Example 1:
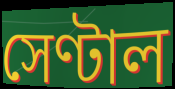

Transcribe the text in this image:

সেণ্টাল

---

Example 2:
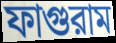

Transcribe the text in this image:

ফাগুরাম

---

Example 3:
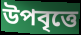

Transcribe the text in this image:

উপবৃত্তে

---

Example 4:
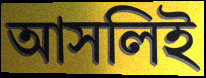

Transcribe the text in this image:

আসলিই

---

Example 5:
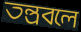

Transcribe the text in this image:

তন্ত্রবলে